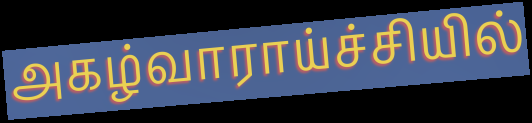
அகழ்வாராய்ச்சியில்